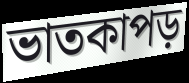
ভাতকাপড়